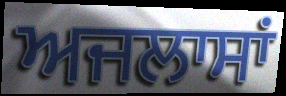
ਅਜਲਾਸਾਂ